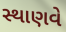
સ્થાણવે